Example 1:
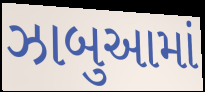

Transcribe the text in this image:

ઝાબુઆમાં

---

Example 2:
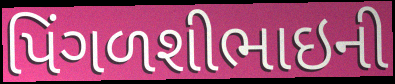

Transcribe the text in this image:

પિંગળશીભાઇની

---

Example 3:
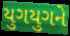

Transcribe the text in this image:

યુગયુગને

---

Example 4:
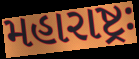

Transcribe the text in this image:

મહારાષ્ટ્રઃ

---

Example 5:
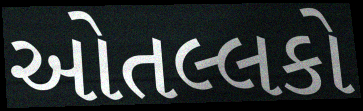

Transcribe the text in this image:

ઓતલ્લકો